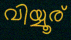
വിയ്യൂര്